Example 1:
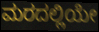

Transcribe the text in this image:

ಮರದಲ್ಲಿಯೇ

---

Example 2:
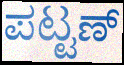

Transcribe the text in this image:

ಪಟ್ಟಣ್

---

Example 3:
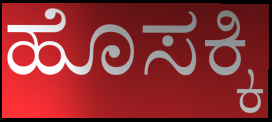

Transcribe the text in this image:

ಹೊಸಕ್ಕಿ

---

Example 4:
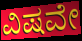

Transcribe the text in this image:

ವಿಷವೇ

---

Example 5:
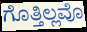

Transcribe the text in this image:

ಗೊತ್ತಿಲ್ಲವೊ